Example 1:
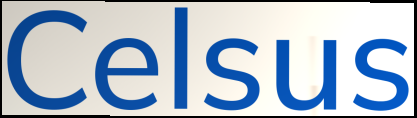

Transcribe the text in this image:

Celsus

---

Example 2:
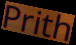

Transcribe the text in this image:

Prith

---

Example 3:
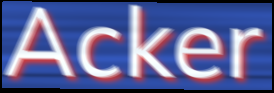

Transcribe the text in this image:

Acker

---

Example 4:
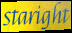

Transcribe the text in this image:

staright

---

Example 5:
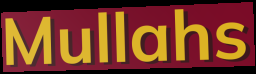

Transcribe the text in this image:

Mullahs